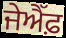
ਜੇਐੱਫ਼